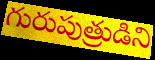
గురుపుత్రుడిని